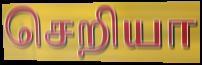
செறியா